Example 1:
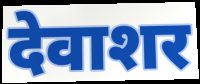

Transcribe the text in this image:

देवाशर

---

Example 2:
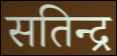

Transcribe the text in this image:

सतिन्द्र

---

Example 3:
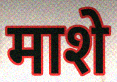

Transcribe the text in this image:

माशे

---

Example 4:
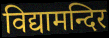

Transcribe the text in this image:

विद्यामन्दिर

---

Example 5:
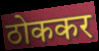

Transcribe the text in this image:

ठोककर